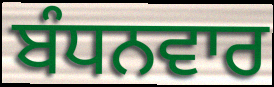
ਬੰਧਨਵਾਰ